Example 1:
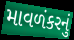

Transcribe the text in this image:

માવળંકરનું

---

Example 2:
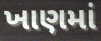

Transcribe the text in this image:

ખાણમાં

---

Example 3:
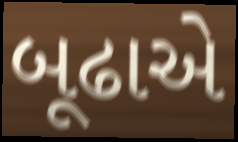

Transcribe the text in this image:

બૂઢાએ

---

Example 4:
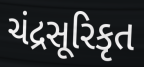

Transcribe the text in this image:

ચંદ્રસૂરિકૃત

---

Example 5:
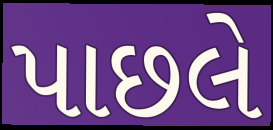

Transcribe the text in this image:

પાછલે